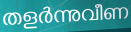
തളർന്നുവീണ